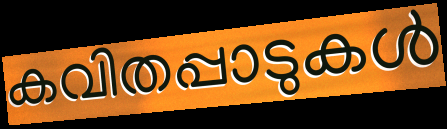
കവിതപ്പാടുകൾ